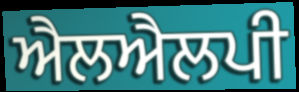
ਐਲਐਲਪੀ